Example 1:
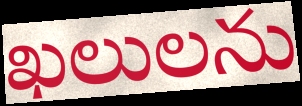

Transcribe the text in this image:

ఖలులను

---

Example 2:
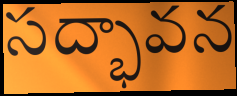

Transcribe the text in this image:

సద్భావన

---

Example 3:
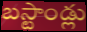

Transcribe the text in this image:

బస్టాండ్లు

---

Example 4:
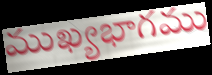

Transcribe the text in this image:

ముఖ్యభాగము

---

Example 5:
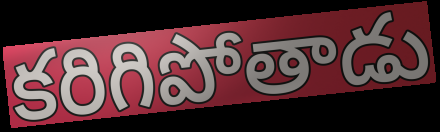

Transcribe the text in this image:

కరిగిపోతాడు